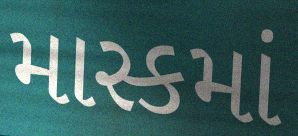
માસ્કમાં